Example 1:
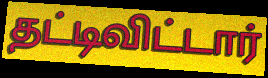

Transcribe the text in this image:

தட்டிவிட்டார்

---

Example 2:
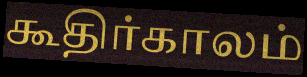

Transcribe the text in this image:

கூதிர்காலம்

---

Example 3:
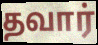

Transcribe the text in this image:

தவார்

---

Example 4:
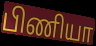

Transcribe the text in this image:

பிணியா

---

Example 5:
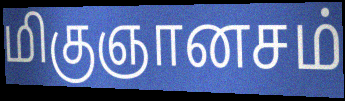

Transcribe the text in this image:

மிகுஞானசம்